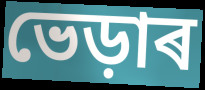
ভেড়াৰ